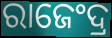
ରାଜେଂଦ୍ର